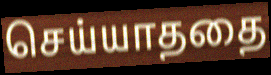
செய்யாததை